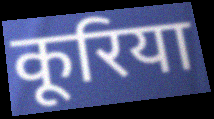
कूरिया